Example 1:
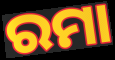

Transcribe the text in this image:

ରମା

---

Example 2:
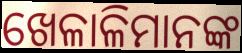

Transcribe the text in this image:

ଖେଳାଳିମାନଙ୍କ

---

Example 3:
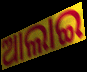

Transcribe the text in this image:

ଆଲାଇ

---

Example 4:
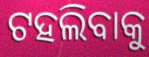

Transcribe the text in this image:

ଟହଲିବାକୁ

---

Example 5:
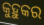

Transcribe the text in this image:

କୁହୁକର